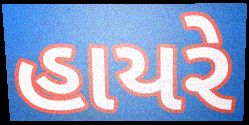
હાયરે